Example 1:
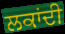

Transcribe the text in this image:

ਲਕਾਂਦੀ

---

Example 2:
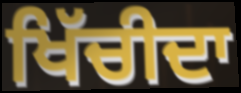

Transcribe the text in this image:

ਖਿੱਚੀਦਾ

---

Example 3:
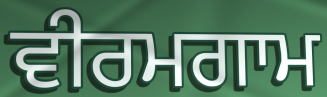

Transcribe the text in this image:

ਵੀਰਮਗਾਮ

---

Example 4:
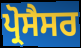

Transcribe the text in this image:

ਪ੍ਰੋਸੈਸਰ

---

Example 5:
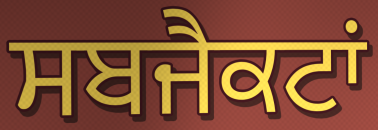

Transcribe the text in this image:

ਸਬਜੈਕਟਾਂ